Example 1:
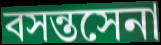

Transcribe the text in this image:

বসন্তসেনা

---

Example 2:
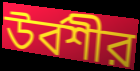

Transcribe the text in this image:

উর্বশীর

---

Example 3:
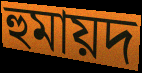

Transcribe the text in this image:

হুমায়দ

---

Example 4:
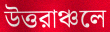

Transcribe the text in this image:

উত্তরাঞ্চলে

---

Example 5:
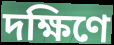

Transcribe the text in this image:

দক্ষিণে